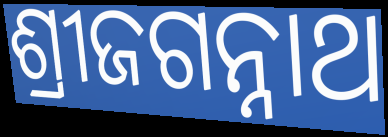
ଶ୍ରୀଜଗନ୍ନାଥ